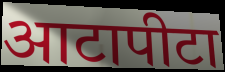
आटापीटा